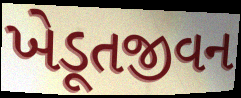
ખેડૂતજીવન